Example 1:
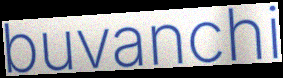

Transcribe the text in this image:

buvanchi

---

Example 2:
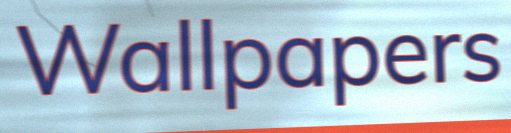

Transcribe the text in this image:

Wallpapers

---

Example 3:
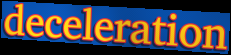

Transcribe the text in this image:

deceleration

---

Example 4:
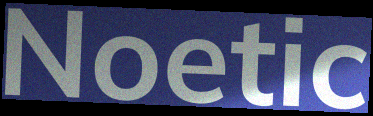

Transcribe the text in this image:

Noetic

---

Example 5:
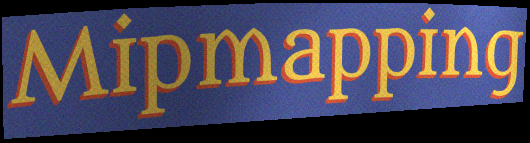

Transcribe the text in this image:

Mipmapping